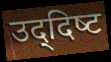
उद्‌दिष्‍ट